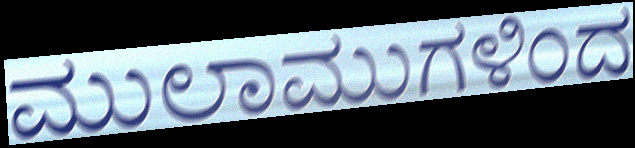
ಮುಲಾಮುಗಳಿಂದ